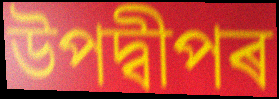
উপদ্বীপৰ